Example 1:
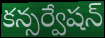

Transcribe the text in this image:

కన్సర్వేషన్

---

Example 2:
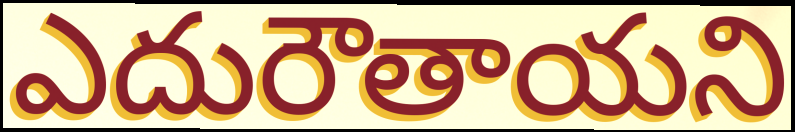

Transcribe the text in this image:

ఎదురౌతాయని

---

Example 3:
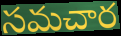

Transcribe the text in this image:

సమచార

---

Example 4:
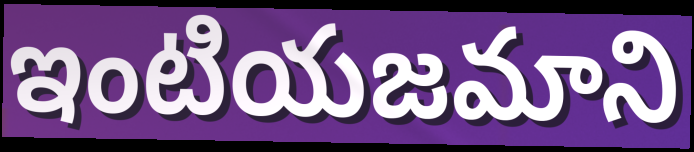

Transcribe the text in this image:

ఇంటియజమాని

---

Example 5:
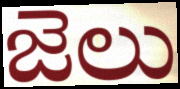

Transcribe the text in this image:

జెలు